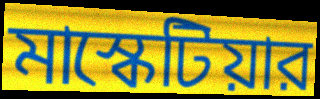
মাস্কেটিয়ার